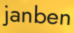
janben